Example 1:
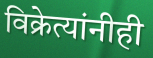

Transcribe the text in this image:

विक्रेत्यांनीही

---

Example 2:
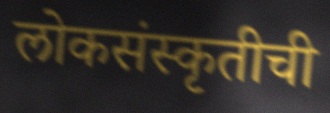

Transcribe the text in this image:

लोकसंस्कृतीची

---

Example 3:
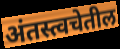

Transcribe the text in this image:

अंतस्त्वचेतील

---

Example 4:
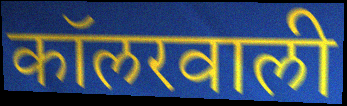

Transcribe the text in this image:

कॉलरवाली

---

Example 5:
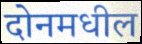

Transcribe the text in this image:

दोनमधील